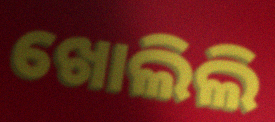
ଖୋଲିଲି